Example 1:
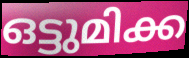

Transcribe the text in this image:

ഒട്ടുമിക്ക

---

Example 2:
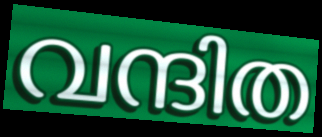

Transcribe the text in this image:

വന്ദിത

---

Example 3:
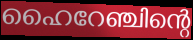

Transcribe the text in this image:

ഹൈറേഞ്ചിന്റെ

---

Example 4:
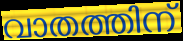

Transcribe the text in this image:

വാതത്തിന്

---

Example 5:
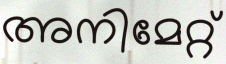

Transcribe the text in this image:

അനിമേറ്റ്